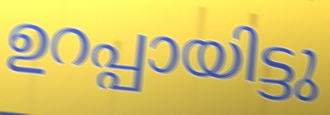
ഉറപ്പായിട്ടു